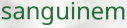
sanguinem